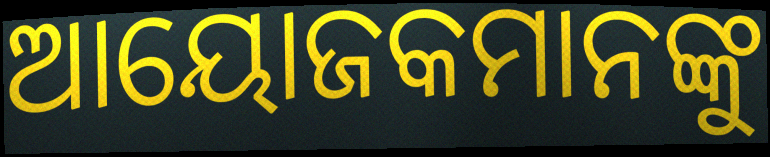
ଆୟୋଜକମାନଙ୍କୁ